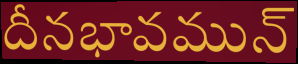
దీనభావమున్